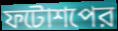
ফটোশপের